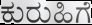
ಕುರುಹಿಗೆ